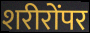
शरीरोंपर